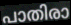
പാതിരാ